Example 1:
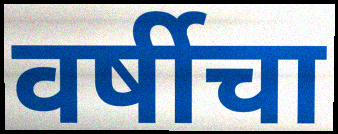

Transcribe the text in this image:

वर्षीचा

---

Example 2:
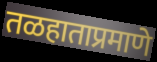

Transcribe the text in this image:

तळहाताप्रमाणे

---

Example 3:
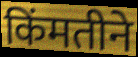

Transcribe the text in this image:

किंमतीने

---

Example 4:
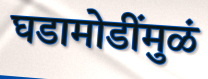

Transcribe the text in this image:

घडामोडींमुळं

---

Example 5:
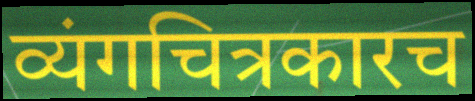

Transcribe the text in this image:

व्यंगचित्रकारच